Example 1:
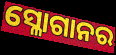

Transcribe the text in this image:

ସ୍ଳୋଗାନର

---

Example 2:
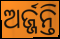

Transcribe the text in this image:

ଅର୍ଜ୍ଜନ୍ତି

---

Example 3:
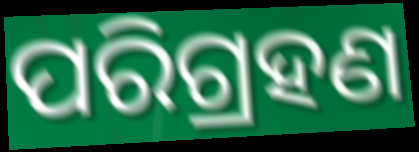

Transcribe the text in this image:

ପରିଗ୍ରହଣ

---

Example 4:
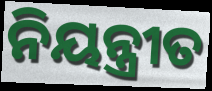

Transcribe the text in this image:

ନିୟନ୍ତ୍ରୀତ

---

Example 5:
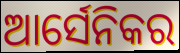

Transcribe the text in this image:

ଆର୍ସେନିକର